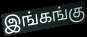
இங்கங்கு